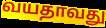
வயதாவது